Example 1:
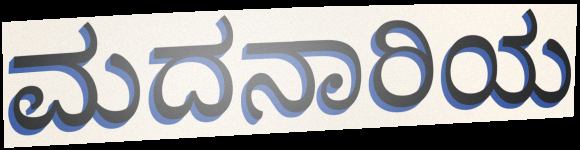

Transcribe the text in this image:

ಮದನಾರಿಯ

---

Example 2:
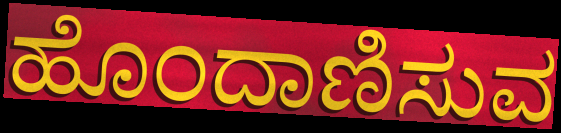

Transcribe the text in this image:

ಹೊಂದಾಣಿಸುವ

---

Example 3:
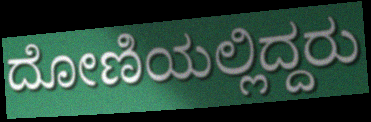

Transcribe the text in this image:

ದೋಣಿಯಲ್ಲಿದ್ದರು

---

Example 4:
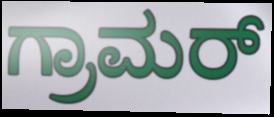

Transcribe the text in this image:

ಗ್ರಾಮರ್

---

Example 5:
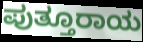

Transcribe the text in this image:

ಪುತ್ತೂರಾಯ